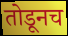
तोडूनच